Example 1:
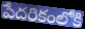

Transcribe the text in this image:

పేదరికంలోకి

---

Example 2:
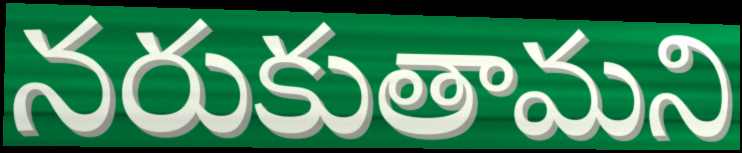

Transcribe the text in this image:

నరుకుతామని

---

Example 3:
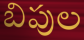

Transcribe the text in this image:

బిపుల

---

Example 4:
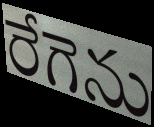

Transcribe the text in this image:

రేగెను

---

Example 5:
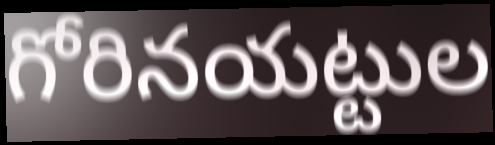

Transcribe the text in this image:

గోరినయట్టుల